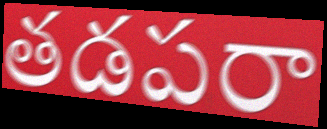
తడపరా